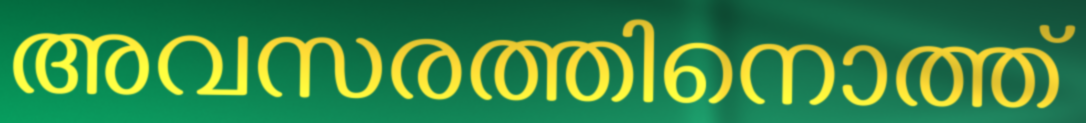
അവസരത്തിനൊത്ത്